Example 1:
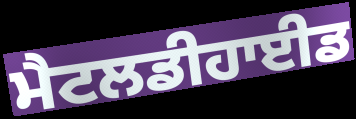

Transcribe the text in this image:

ਮੈਟਲਡੀਹਾਈਡ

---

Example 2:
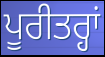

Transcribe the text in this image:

ਪੂਰੀਤਰ੍ਹਾਂ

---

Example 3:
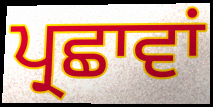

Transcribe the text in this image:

ਪ੍ਰਛਾਵਾਂ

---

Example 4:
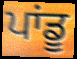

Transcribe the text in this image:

ਪਾਂਡੂ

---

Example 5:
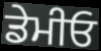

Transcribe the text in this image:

ਡੇਮੀਓ